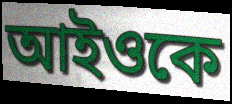
আইওকে